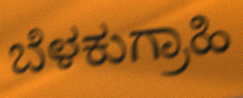
ಬೆಳಕುಗ್ರಾಹಿ